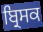
ਬ੍ਰਿਸਕ